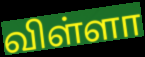
விள்ளா